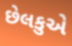
છેલકુએ